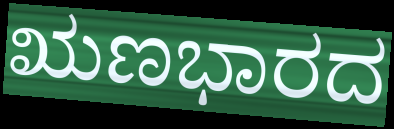
ಋಣಭಾರದ